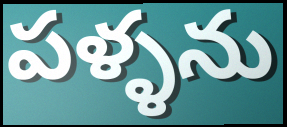
పళ్ళను